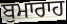
ਬੁਮਾਰਾਹ